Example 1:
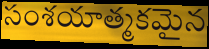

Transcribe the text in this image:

సంశయాత్మకమైన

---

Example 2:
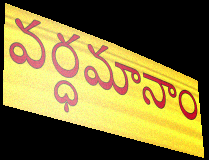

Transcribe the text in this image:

వర్ధమానాం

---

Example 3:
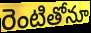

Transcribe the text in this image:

రెంటితోనూ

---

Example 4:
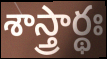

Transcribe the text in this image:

శాస్త్రార్థః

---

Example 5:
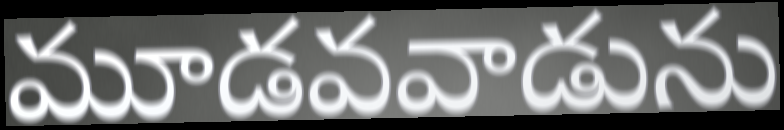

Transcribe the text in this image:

మూడవవాడును